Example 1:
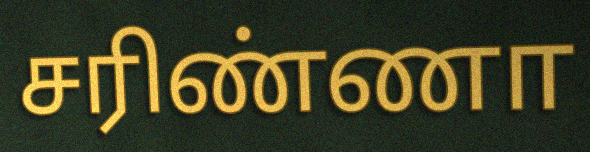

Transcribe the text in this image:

சரிண்ணா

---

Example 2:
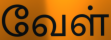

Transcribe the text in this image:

வேள்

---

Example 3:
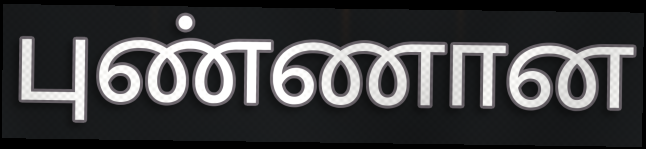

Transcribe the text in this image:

புண்ணான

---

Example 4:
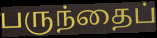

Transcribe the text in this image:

பருந்தைப்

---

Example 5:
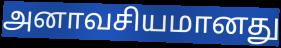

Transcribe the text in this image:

அனாவசியமானது